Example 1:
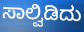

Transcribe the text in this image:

ಸಾಲ್ವಿಡಿದು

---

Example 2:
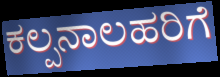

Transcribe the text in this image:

ಕಲ್ಪನಾಲಹರಿಗೆ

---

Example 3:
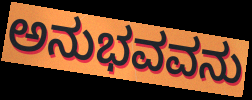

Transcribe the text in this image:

ಅನುಭವವನು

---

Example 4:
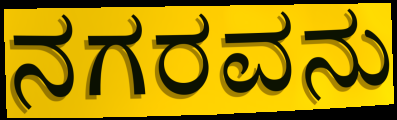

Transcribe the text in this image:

ನಗರವನು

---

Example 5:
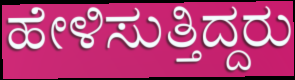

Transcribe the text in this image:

ಹೇಳಿಸುತ್ತಿದ್ದರು